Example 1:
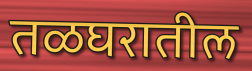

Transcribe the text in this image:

तळघरातील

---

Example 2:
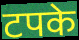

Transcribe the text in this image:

टपके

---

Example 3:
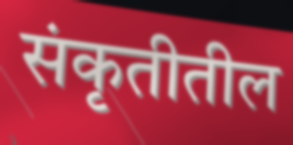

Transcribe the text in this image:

संकृतीतील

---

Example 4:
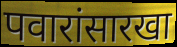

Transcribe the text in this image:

पवारांसारखा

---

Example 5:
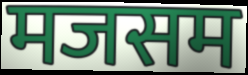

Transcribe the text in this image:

मजसम